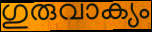
ഗുരുവാക്യം